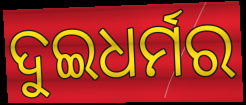
ଦୁଇଧର୍ମର